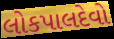
લોકપાલદેવો